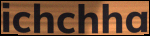
ichchha